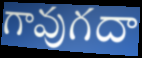
గావుగదా